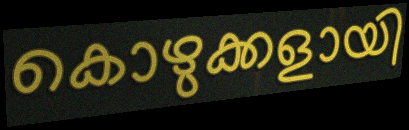
കൊഴുക്കളായി